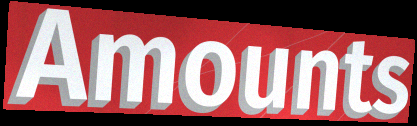
Amounts